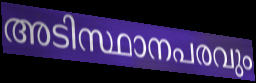
അടിസ്ഥാനപരവും